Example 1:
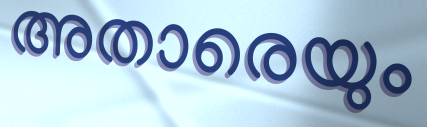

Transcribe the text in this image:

അതാരെയും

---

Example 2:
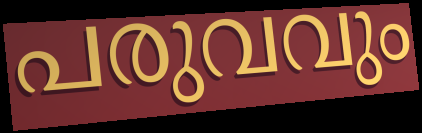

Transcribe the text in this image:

പരുവവും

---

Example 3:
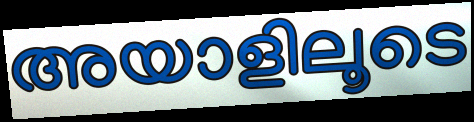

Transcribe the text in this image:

അയാളിലൂടെ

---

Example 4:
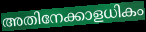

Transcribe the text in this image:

അതിനേക്കാളധികം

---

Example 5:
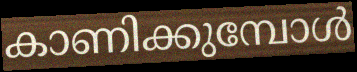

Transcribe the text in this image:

കാണിക്കുമ്പോൾ